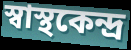
স্বাস্থকেন্দ্র